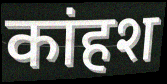
कांहश